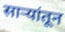
साऱ्यांतून